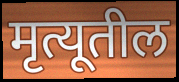
मृत्यूतील